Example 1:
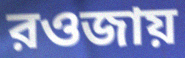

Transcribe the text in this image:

রওজায়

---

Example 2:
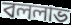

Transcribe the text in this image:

বললাভ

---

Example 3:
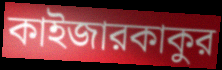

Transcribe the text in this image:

কাইজারকাকুর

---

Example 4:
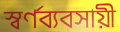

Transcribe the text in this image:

স্বর্ণব্যবসায়ী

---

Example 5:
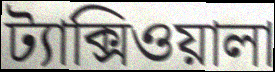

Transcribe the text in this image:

ট্যাক্সিওয়ালা